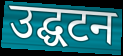
उद्घटन